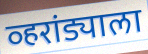
व्हरांड्याला